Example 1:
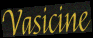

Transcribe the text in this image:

Vasicine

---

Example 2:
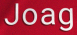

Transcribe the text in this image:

Joag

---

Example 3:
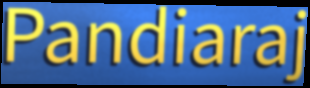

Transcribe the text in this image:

Pandiaraj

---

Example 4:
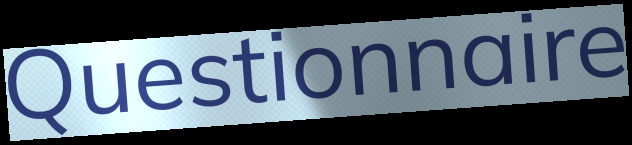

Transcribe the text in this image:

Questionnaire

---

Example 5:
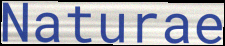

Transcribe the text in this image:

Naturae